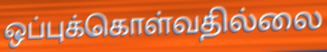
ஒப்புக்கொள்வதில்லை